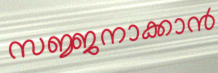
സജ്ജനാക്കാൻ